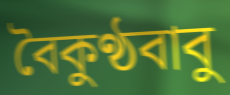
বৈকুণ্ঠবাবু